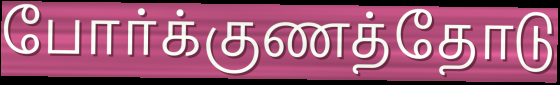
போர்க்குணத்தோடு